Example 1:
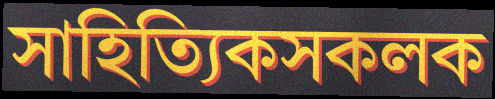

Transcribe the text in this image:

সাহিত্যিকসকলক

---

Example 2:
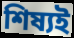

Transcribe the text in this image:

শিষ্যই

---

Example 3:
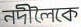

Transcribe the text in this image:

নদীলৈকে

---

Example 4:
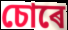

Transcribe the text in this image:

চোৰে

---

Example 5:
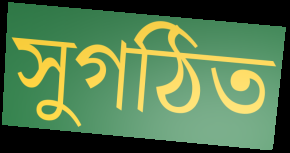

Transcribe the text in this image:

সুগঠিত